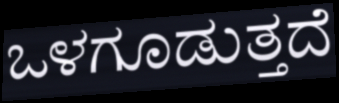
ಒಳಗೂಡುತ್ತದೆ